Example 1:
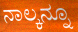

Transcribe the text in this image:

ನಾಲ್ಕನ್ನೂ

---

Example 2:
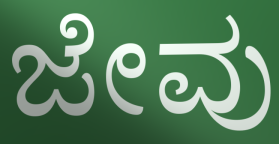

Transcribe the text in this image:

ಜೇವು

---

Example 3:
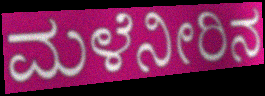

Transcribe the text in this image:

ಮಳೆನೀರಿನ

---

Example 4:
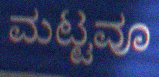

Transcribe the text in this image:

ಮಟ್ಟವೂ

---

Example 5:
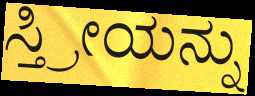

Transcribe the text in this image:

ಸ್ತ್ರೀಯನ್ನು